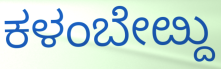
ಕಳಂಬೇೞ್ದು